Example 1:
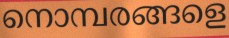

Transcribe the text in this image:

നൊമ്പരങ്ങളെ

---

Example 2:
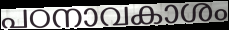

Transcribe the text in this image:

പഠനാവകാശം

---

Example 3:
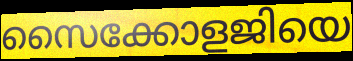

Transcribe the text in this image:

സൈക്കോളജിയെ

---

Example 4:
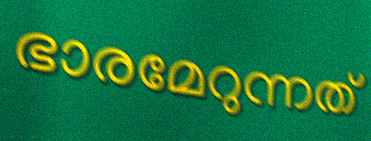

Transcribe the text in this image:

ഭാരമേറുന്നത്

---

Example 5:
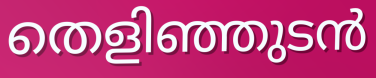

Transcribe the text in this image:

തെളിഞ്ഞുടൻ